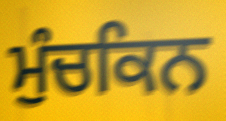
ਮੁੰਚਕਿਨ